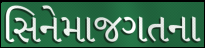
સિનેમાજગતના